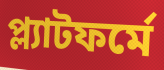
প্ল্যাটফর্মে